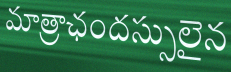
మాత్రాఛందస్సులైన